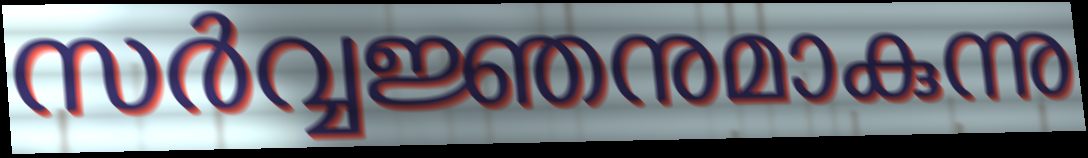
സർവ്വജ്ഞനുമാകുന്നു